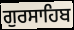
ਗੁਰਸਾਹਿਬ